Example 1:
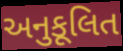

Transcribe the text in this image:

અનુકૂલિત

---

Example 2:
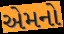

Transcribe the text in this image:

એમનો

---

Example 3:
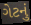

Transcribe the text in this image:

ગેટનું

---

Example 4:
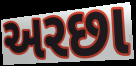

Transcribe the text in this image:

અરછા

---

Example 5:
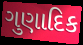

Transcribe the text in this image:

ગુણાદિક